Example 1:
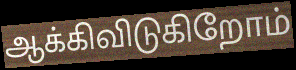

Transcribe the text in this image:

ஆக்கிவிடுகிறோம்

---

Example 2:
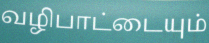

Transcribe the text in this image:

வழிபாட்டையும்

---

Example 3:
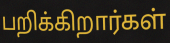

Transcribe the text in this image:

பறிக்கிறார்கள்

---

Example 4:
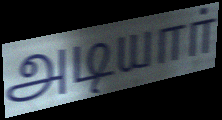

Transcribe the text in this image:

அடியார்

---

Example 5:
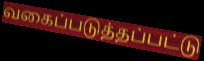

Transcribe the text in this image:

வகைப்படுத்தப்பட்டு